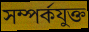
সম্পর্কযুক্ত